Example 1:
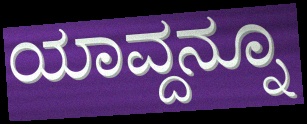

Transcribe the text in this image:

ಯಾವ್ದನ್ನೂ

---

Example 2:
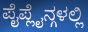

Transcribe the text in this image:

ಪೈಪ್ಲೈನ್ಗಳಲ್ಲಿ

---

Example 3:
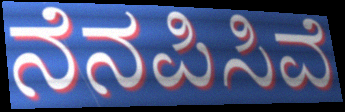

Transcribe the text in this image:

ನೆನಪಿಸಿವೆ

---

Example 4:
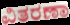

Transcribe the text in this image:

ವಿತರಣಾ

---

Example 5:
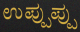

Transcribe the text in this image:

ಉಪ್ಪುಪ್ಪು